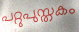
പറ്റുപുസ്തകം